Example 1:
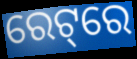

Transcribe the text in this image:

ରେଟ୍‌ରେ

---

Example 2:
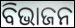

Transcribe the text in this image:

ବିଭାଜନ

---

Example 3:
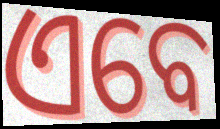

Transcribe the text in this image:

ଏବେ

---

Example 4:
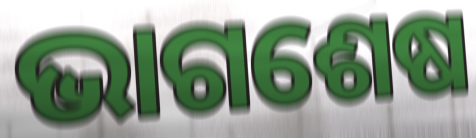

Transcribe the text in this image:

ଭାଗଶେଷ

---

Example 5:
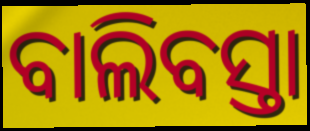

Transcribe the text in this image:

ବାଲିବସ୍ତା